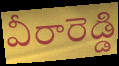
వీరారెడ్డి